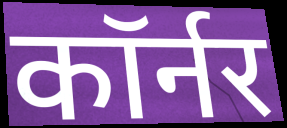
कॉर्नर